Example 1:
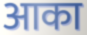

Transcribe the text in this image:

आका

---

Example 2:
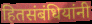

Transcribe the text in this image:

हितसंबंधियांनी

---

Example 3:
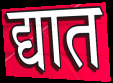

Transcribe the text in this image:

द्यात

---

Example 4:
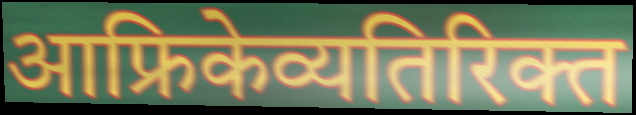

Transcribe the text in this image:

आफ्रिकेव्यतिरिक्त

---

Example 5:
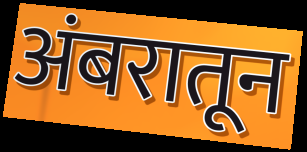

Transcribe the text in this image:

अंबरातून